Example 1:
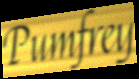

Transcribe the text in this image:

Pumfrey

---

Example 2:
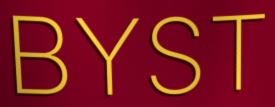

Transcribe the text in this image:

BYST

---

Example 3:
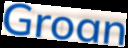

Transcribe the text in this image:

Groan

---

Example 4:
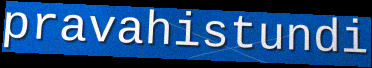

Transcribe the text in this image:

pravahistundi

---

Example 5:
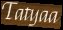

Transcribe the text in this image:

Tatyaa